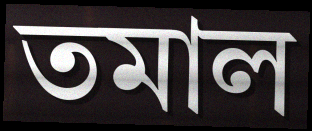
তমাল